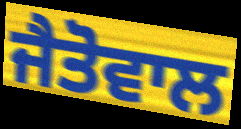
ਜੈਤੋਵਾਲ